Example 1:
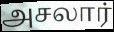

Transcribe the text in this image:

அசலார்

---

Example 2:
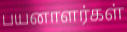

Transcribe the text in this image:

பயனாளர்கள்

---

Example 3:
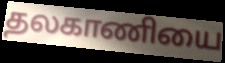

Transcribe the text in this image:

தலகாணியை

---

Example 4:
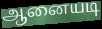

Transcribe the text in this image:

ஆனையடி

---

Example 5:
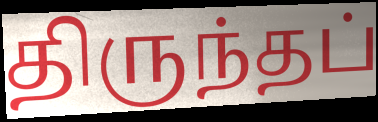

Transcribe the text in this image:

திருந்தப்